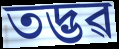
তদ্ভৱ